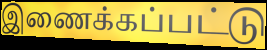
இணைக்கப்பட்டு